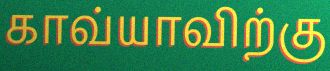
காவ்யாவிற்கு